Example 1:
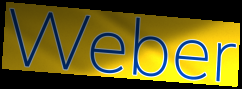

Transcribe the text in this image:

Weber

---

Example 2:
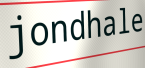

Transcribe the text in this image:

jondhale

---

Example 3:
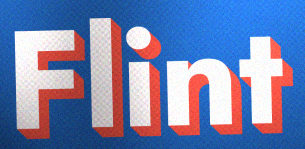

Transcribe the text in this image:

Flint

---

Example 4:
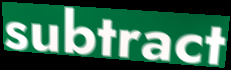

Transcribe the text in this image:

subtract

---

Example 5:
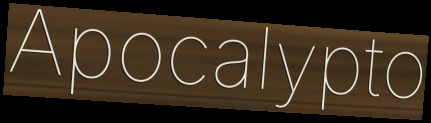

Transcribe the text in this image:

Apocalypto